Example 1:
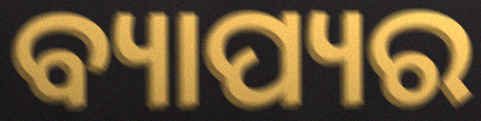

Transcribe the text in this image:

ବ୍ୟାପ୍ୟର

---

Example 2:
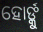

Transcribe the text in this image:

ହୋର୍ଙ୍କୁ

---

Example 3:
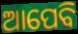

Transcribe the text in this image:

ଆପେବି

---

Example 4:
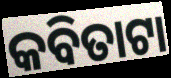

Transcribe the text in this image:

କବିତାଟା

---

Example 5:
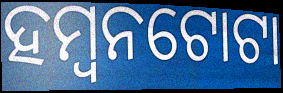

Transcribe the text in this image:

ହମ୍ବନଟୋଟା